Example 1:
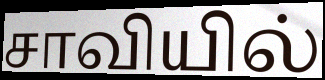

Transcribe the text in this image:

சாவியில்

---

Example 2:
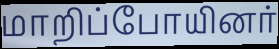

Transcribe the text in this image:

மாறிப்போயினர்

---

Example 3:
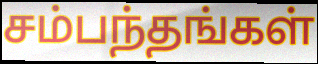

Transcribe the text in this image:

சம்பந்தங்கள்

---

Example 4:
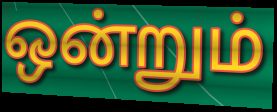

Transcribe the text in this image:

ஒன்றும்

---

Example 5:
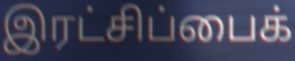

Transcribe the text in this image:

இரட்சிப்பைக்